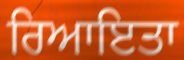
ਰਿਆਇਤਾ